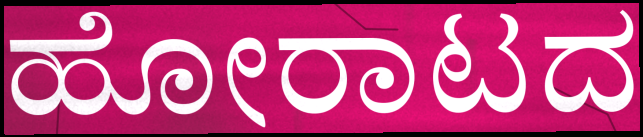
ಹೋರಾಟದ